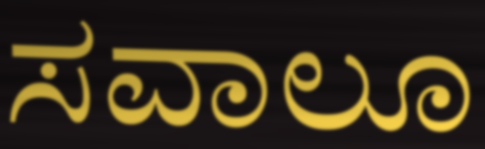
ಸವಾಲೂ